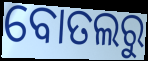
ବୋତଲରୁ